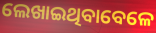
ଲେଖାଇଥିବାବେଳେ